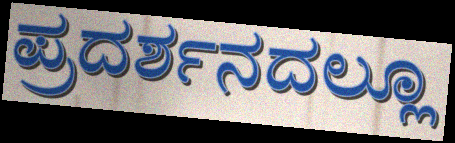
ಪ್ರದರ್ಶನದಲ್ಲೂ